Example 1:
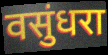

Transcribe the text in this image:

वसुंधरा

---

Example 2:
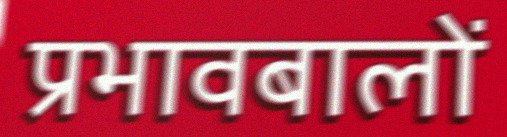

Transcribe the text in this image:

प्रभावबालों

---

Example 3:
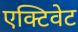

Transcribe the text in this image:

एक्टिवेट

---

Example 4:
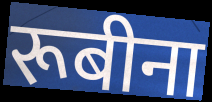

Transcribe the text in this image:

रूबीना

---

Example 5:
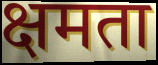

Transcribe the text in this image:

क्षमता